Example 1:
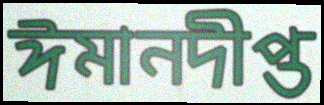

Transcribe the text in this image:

ঈমানদীপ্ত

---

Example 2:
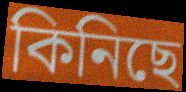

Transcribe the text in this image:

কিনিছে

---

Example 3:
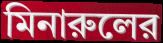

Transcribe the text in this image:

মিনারুলের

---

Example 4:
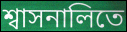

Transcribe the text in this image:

শ্বাসনালিতে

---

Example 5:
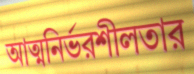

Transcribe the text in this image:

আত্মনির্ভরশীলতার